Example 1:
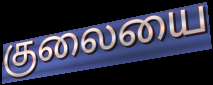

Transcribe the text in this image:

குலையை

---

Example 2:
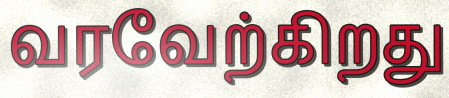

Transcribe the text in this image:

வரவேற்கிறது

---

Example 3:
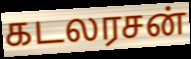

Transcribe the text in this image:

கடலரசன்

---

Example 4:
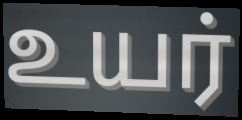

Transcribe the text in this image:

உயர்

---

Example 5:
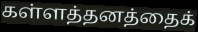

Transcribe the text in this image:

கள்ளத்தனத்தைக்